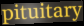
pituitary